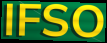
IFSO